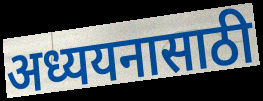
अध्ययनासाठी